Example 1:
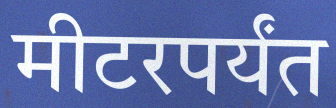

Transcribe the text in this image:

मीटरपर्यंत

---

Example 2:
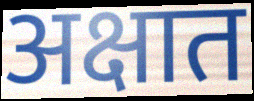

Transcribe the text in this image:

अक्षात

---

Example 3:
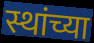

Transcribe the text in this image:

स्थांच्या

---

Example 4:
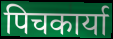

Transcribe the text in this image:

पिचकार्या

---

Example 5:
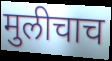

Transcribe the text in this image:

मुलीचाच